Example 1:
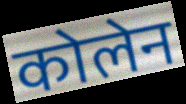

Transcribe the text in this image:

कोलेन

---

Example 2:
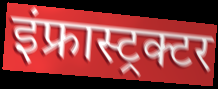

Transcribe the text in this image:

इंफ्रास्ट्रक्टर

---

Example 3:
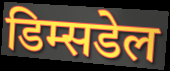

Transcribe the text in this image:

डिम्सडेल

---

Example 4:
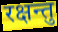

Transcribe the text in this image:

रक्षन्तु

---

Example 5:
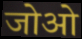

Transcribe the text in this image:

जोओ